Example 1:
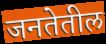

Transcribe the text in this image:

जनतेतील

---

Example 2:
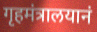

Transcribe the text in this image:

गृहमंत्रालयानं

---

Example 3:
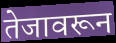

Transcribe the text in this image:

तेजावरून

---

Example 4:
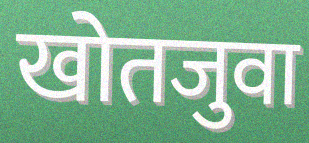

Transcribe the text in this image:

खोतजुवा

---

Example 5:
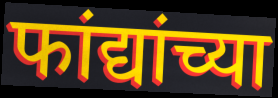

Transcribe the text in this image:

फांद्यांच्या